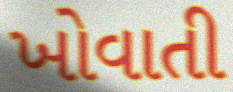
ખોવાતી